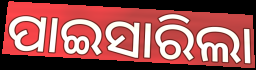
ପାଇସାରିଲା